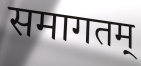
समागतम्